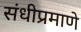
संधीप्रमाणे